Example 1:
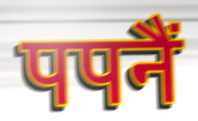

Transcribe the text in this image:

पपनैं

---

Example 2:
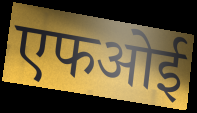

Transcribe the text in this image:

एफओई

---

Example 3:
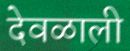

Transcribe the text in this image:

देवळाली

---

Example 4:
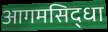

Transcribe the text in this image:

आगमसिद्धा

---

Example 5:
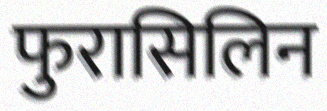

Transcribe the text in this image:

फुरासिलिन